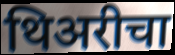
थिअरीचा